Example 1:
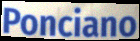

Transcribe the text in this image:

Ponciano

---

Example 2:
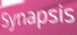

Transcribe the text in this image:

Synapsis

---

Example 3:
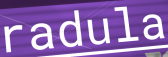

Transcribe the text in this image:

radula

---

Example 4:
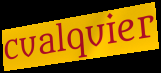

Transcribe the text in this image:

cualquier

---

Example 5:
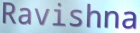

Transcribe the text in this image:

Ravishna